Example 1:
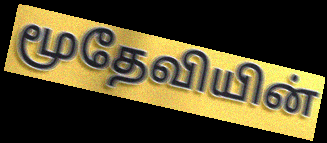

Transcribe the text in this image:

மூதேவியின்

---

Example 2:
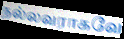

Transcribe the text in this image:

நல்லவராகவே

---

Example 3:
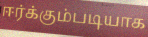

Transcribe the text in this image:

ஈர்க்கும்படியாக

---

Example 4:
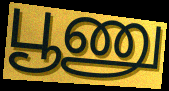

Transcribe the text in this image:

பூணு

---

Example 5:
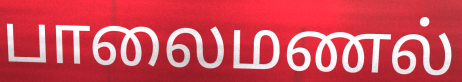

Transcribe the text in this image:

பாலைமணல்